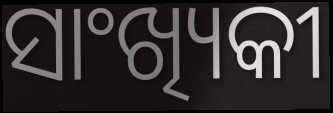
ସାଂଖ୍ୟିକୀ